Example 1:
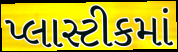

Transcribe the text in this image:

પ્લાસ્ટીકમાં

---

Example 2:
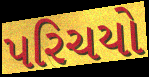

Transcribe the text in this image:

પરિચયો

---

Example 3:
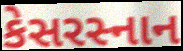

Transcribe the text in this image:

કેસરસ્નાન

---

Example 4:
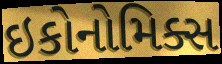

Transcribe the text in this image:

ઇકોનોમિક્સ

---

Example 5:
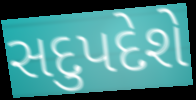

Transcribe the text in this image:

સદુપદેશે